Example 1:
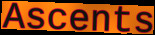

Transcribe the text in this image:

Ascents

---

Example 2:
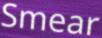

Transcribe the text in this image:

Smear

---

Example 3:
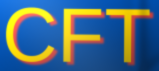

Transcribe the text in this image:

CFT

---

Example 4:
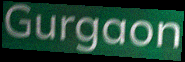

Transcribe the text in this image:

Gurgaon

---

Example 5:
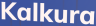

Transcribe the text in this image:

Kalkura